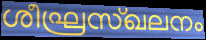
ശീഘ്രസ്ഖലനം